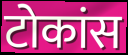
टोकांस